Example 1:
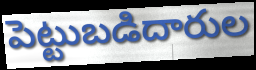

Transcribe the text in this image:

పెట్టుబడిదారుల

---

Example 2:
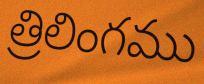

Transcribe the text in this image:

త్రిలింగము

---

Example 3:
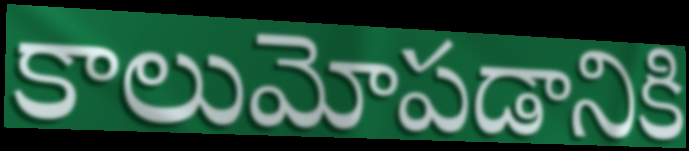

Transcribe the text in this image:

కాలుమోపడానికి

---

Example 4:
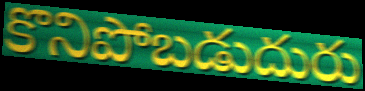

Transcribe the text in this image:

కొనిపోబడుదురు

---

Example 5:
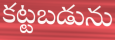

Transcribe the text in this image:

కట్టబడును